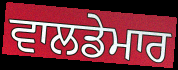
ਵਾਲਡੇਮਾਰ